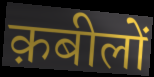
क़बीलों